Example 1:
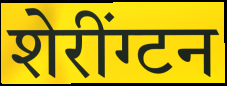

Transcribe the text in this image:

शेरींग्टन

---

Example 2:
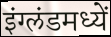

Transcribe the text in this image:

इंग्लंडमध्यें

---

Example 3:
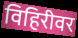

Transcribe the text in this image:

विहिरीवर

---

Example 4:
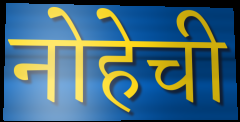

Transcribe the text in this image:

नोहेची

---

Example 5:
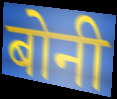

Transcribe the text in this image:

बोनी